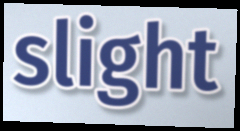
slight